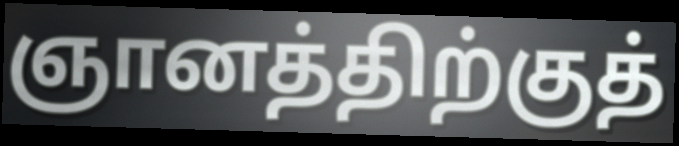
ஞானத்திற்குத்